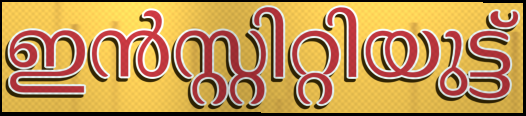
ഇൻസ്റ്റിറ്റിയുട്ട്